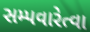
સમ્પવારેત્વા